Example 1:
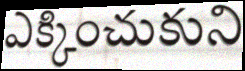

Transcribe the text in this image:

ఎక్కించుకుని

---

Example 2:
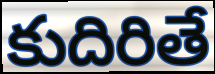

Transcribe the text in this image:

కుదిరితే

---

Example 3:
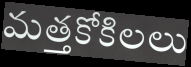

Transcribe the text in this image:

మత్తకోకిలలు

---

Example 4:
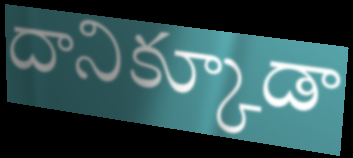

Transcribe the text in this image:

దానిక్కూడా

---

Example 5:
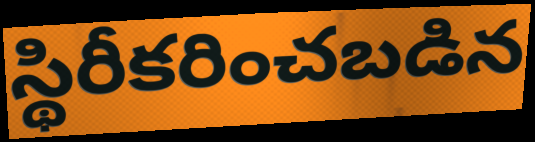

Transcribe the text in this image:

స్థిరీకరించబడిన